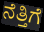
ನೆತ್ತಿಗೆ